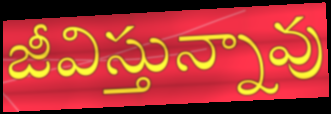
జీవిస్తున్నావు